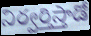
నిర్వర్తిస్తాడో